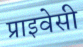
प्राइवेसी